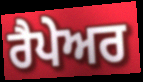
ਰੈਪੇਅਰ